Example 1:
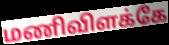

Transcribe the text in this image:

மணிவிளக்கே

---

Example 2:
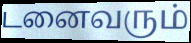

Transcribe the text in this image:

டனைவரும்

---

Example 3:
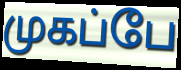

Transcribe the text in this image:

முகப்பே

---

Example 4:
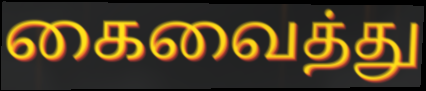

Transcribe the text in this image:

கைவைத்து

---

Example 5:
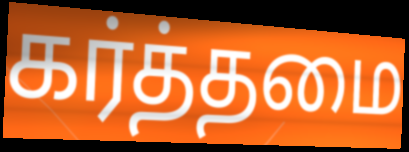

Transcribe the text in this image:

கர்த்தமை